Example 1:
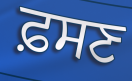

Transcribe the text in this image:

ਫ਼ਸਣ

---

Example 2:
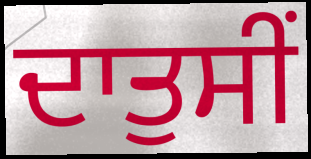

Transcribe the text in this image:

ਦਾਤੁਸੀਂ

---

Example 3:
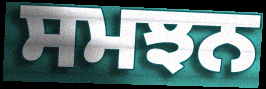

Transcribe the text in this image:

ਸਮਝਨ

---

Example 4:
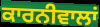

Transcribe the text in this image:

ਕਾਰਨੀਵਾਲਾਂ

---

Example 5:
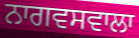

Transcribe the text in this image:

ਨਾਗਵਸਵਾਲਾ